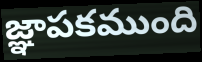
జ్ఞాపకముంది